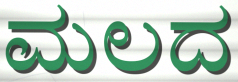
ಮಲದ